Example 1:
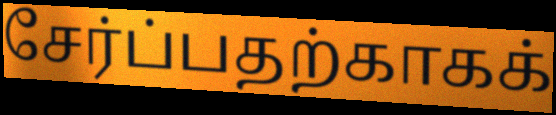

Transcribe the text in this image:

சேர்ப்பதற்காகக்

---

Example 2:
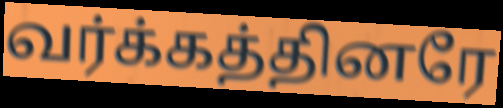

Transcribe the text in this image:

வர்க்கத்தினரே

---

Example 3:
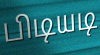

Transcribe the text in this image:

பிடியடி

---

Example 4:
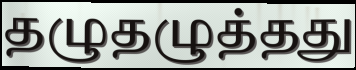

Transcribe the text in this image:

தழுதழுத்தது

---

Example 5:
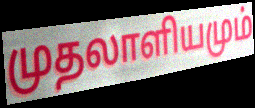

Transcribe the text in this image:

முதலாளியமும்